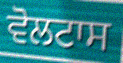
ਵੋਲਟਾਸ